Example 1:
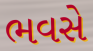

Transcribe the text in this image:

ભવસે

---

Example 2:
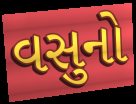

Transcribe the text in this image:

વસુનો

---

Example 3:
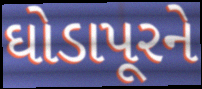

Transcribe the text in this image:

ઘોડાપૂરને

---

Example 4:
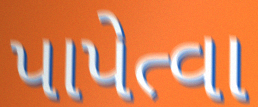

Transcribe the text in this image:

પાપેત્વા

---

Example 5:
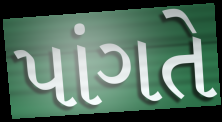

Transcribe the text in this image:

પાંગતે